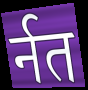
र्नत